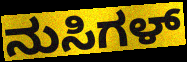
ನುಸಿಗಳ್